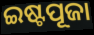
ଇଷ୍ଟପୂଜା